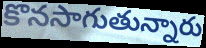
కొనసాగుతున్నారు